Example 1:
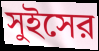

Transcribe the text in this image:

সুইসের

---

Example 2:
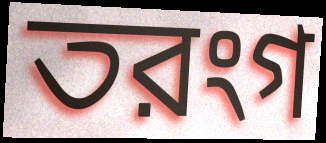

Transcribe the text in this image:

তরংগ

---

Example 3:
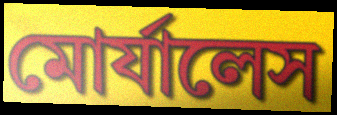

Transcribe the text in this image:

মোর্যালেস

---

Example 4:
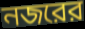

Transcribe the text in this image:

নজরের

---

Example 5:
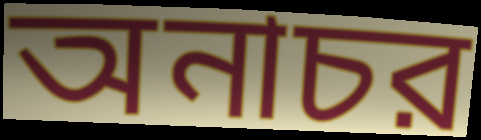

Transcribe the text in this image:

অনাচর